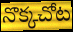
నొక్కచోట